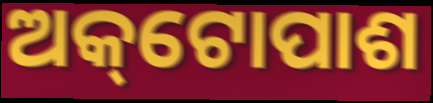
ଅକ୍‌ଟୋପାଶ